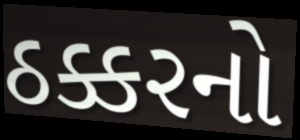
ઠક્કરનો